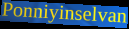
Ponniyinselvan